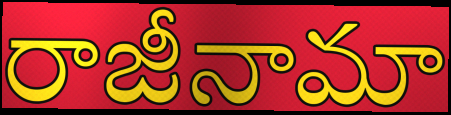
రాజీనామా